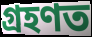
গ্ৰহণত